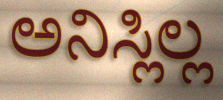
ಅನಿಸ್ಲಿಲ್ಲ